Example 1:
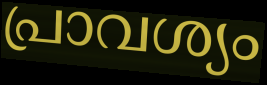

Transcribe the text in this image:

പ്രാവശ്യം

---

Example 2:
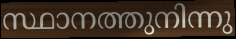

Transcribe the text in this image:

സ്ഥാനത്തുനിന്നു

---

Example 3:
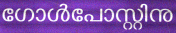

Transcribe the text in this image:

ഗോൾപോസ്റ്റിനു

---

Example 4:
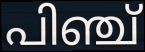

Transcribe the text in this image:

പിഞ്ച്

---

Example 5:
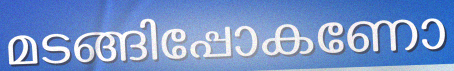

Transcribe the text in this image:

മടങ്ങിപ്പോകണോ